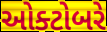
ઓક્ટોબરે